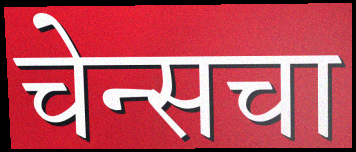
चेन्सचा